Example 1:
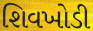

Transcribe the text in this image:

શિવખોડી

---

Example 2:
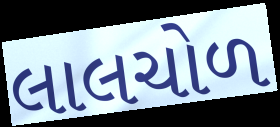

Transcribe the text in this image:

લાલચોળ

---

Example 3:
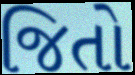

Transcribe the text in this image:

જિતો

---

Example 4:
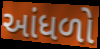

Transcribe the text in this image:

આંધળો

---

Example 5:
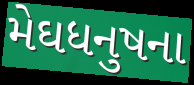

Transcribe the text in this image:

મેઘધનુષના